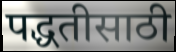
पद्धतीसाठी